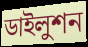
ডাইলুশন